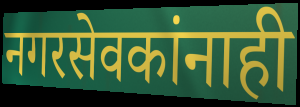
नगरसेवकांनाही